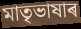
মাতৃভাষাৰ